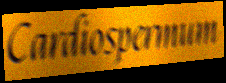
Cardiospermum